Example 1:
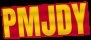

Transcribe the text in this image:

PMJDY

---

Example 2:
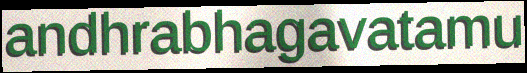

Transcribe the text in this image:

andhrabhagavatamu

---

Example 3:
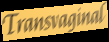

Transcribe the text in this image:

Transvaginal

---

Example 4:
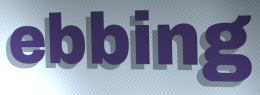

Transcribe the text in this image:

ebbing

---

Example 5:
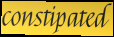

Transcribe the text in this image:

constipated